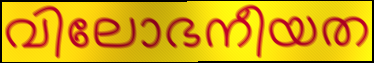
വിലോഭനീയത